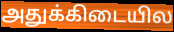
அதுக்கிடையில